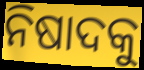
ନିଷାଦକୁ